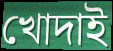
খোদাই